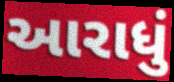
આરાધું